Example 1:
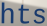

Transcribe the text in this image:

hts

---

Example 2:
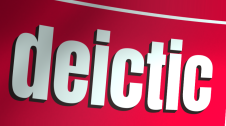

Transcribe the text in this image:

deictic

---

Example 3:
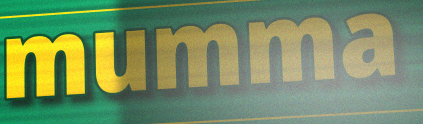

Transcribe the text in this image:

mumma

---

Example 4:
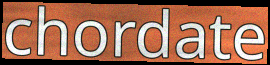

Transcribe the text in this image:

chordate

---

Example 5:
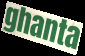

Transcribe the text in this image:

ghanta